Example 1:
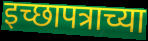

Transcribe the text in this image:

इच्छापत्राच्या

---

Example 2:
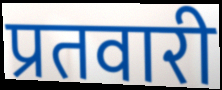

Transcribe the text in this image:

प्रतवारी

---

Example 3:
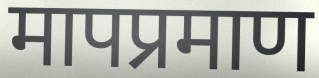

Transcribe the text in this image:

मापप्रमाण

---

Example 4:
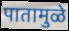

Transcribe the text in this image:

पातामुळे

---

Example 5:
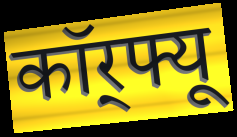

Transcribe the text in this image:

कॉर्फ्यू